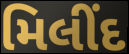
મિલીંદ